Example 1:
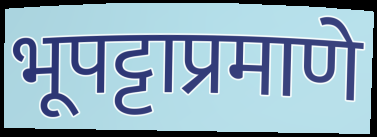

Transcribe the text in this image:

भूपट्टाप्रमाणे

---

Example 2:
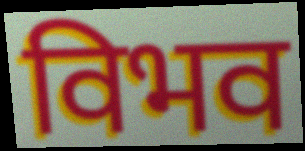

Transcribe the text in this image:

विभव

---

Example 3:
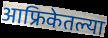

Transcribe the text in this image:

आफ्रिकेतल्या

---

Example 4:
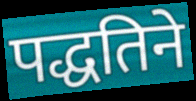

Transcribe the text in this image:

पद्धतिने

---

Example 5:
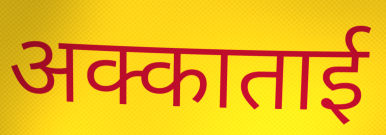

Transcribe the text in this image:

अक्काताई